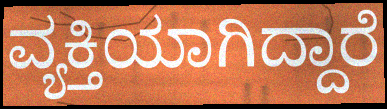
ವ್ಯಕ್ತಿಯಾಗಿದ್ದಾರೆ